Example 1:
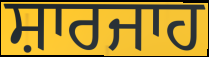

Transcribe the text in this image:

ਸ਼ਾਰਜਾਹ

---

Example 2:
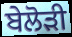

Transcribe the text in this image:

ਬੇਲੋੜੀ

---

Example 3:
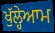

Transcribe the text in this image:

ਖੁੱਲ੍ਹੇਆਮ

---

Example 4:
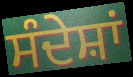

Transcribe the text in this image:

ਸੰਦੇਸ਼ਾਂ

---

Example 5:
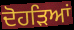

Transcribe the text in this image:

ਦੋਹੜਿਆਂ